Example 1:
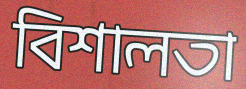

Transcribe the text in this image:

বিশালতা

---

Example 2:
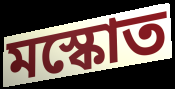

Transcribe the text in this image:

মস্কোত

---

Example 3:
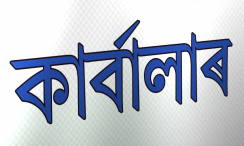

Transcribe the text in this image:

কাৰ্বালাৰ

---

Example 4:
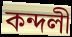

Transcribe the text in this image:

কন্দলী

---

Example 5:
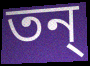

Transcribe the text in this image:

তন্